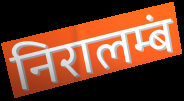
निरालम्बं